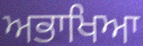
ਅਭਾਖਿਆ